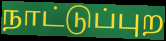
நாட்டுப்புற